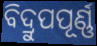
ବିଦ୍ରୁପପୂର୍ଣ୍ଣ